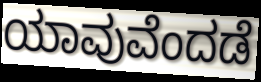
ಯಾವುವೆಂದಡೆ